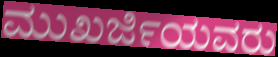
ಮುಖರ್ಜಿಯವರು